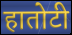
हातोटी